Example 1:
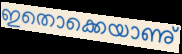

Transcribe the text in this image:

ഇതൊക്കെയാണു്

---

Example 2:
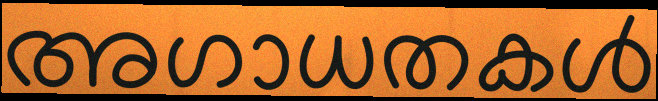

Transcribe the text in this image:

അഗാധതകൾ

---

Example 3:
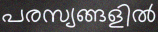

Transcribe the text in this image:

പരസ്യങ്ങളിൽ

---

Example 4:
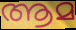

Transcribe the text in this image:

ആമ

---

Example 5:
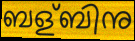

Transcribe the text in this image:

ബള്ബിനു